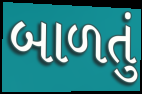
બાળતું